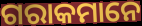
ଗରାକମାନେ